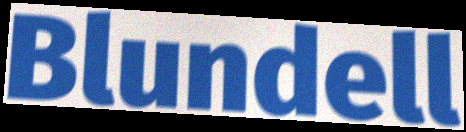
Blundell